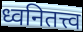
ध्वनितत्त्व